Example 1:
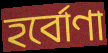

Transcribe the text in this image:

হর্বোণা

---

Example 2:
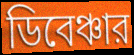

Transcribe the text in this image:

ডিবেঞ্চার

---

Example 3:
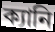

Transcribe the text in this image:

ক্যানি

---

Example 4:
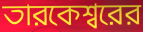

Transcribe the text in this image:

তারকেশ্বরের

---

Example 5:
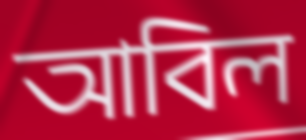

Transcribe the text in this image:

আবিল